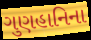
ગુણહાનિના